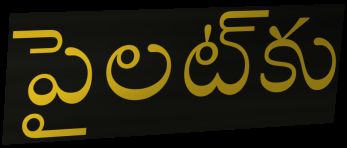
పైలట్‌కు